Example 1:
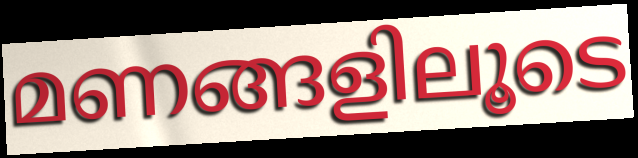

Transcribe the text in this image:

മണങ്ങളിലൂടെ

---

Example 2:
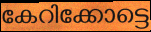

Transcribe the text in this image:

കേറിക്കോട്ടെ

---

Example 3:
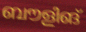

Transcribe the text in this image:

ബൗളിങ്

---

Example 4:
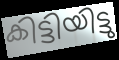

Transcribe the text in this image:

കിട്ടിയിട്ടു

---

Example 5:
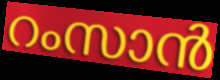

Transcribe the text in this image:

റംസാൻ